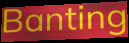
Banting